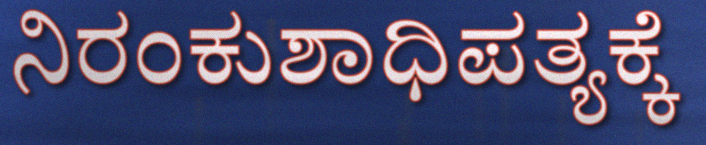
ನಿರಂಕುಶಾಧಿಪತ್ಯಕ್ಕೆ